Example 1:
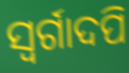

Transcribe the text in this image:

ସ୍ୱର୍ଗାଦପି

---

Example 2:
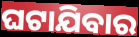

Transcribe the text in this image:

ଘଟାଯିବାର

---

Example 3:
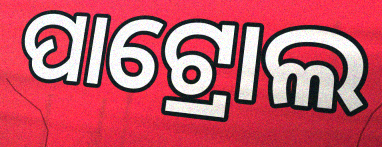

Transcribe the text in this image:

ପାଟ୍ରୋଲ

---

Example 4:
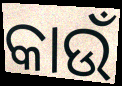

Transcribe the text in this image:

କାଉଁ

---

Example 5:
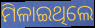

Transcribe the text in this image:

ମିଳାଇଥିଲେ